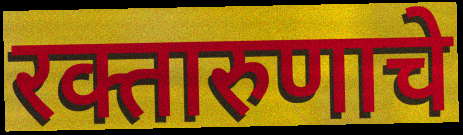
रक्तारुणाचे